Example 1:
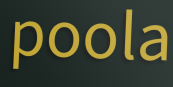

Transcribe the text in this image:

poola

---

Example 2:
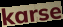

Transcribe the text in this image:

karse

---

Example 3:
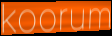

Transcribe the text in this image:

koorum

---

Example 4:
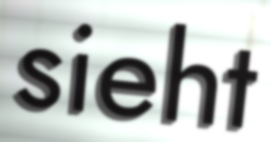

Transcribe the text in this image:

sieht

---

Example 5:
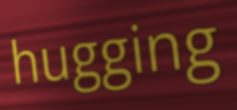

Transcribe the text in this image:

hugging